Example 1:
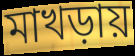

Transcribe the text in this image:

মাখড়ায়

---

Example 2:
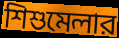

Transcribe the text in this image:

শিশুমেলার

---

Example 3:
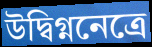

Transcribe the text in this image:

উদ্বিগ্ননেত্রে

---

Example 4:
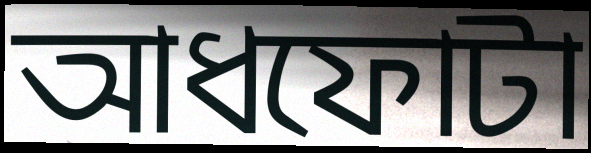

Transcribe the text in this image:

আধফোটা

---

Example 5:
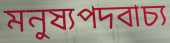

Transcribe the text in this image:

মনুষ্যপদবাচ্য